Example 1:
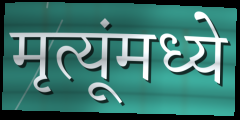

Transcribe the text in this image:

मृत्यूंमध्ये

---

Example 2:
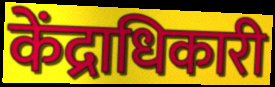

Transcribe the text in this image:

केंद्राधिकारी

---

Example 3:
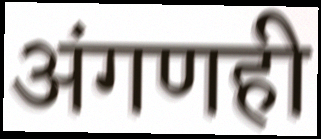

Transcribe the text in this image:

अंगणही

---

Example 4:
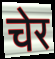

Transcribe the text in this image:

चेर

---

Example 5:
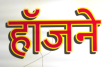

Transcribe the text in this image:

हॉजने